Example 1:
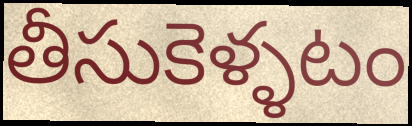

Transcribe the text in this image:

తీసుకెళ్ళటం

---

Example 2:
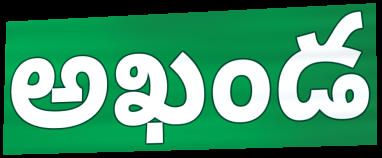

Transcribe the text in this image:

అఖండ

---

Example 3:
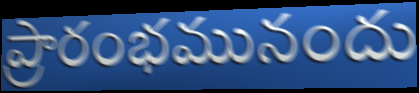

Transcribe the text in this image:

ప్రారంభమునందు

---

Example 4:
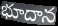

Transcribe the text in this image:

భూదాన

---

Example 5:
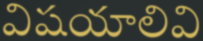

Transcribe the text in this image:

విషయాలివి